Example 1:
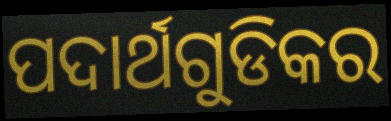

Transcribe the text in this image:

ପଦାର୍ଥଗୁଡିକର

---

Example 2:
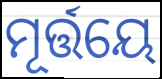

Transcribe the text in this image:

ମୂର୍ତ୍ତୟେ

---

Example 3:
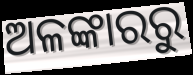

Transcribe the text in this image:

ଅଳଙ୍କାରରୁ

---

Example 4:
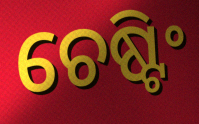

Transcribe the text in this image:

ଚେଷ୍ଟିଂ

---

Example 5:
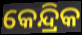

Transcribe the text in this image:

କେନ୍ଦ୍ରିକ